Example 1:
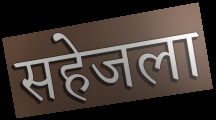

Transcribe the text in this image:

सहेजला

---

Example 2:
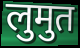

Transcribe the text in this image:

लुमुत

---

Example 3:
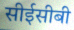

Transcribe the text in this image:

सीईसीबी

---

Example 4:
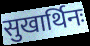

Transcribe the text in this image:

सुखार्थिनः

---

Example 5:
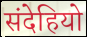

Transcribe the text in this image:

संदेहियो